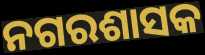
ନଗରଶାସକ